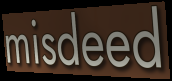
misdeed